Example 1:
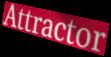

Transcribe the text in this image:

Attractor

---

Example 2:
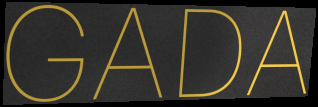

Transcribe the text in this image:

GADA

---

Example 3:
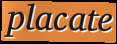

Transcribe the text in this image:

placate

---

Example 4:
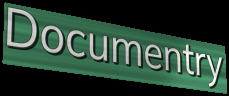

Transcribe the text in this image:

Documentry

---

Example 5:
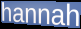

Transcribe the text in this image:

hannah